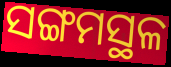
ସଙ୍ଗମସ୍ଥଳ